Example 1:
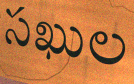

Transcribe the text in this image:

సఖుల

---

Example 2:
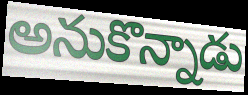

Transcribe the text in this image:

అనుకొన్నాడు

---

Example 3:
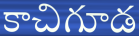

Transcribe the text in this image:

కాచిగూడ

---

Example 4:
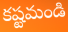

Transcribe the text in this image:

కష్టమండి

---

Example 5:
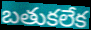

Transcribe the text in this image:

బతుకలేక